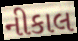
નીકાલ